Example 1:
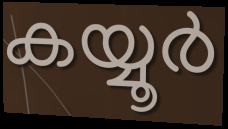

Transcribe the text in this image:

കയ്യൂർ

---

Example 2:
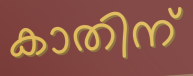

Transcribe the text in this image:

കാതിന്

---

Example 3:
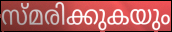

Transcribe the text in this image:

സ്മരിക്കുകയും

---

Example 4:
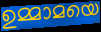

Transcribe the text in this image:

ഉമ്മാമയെ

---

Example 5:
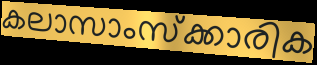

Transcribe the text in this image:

കലാസാംസ്ക്കാരിക